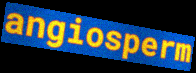
angiosperm